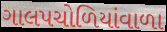
ગાલપચોળિયાંવાળા